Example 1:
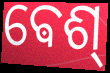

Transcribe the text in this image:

ଵେଶ୍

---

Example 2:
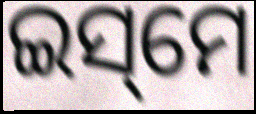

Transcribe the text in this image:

ଇସ୍‌ମେ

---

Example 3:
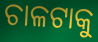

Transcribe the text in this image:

ଚାଳଟାକୁ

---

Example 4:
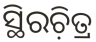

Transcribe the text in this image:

ସ୍ଥିରଚ଼ିତ୍ର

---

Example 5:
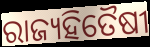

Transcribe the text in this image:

ରାଜ୍ୟହିତୈଷୀ